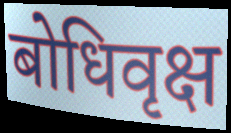
बोधिवृक्ष